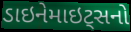
ડાઇનેમાઇટ્સનો